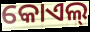
କୋଏଲ୍